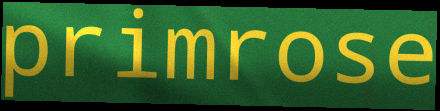
primrose